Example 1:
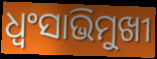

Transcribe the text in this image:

ଧ୍ଵଂସାଭିମୁଖୀ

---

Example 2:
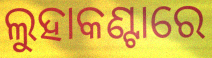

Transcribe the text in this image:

ଲୁହାକଣ୍ଟାରେ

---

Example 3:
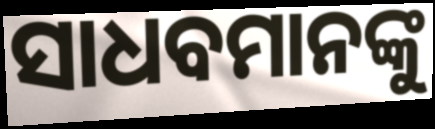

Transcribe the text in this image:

ସାଧବମାନଙ୍କୁ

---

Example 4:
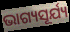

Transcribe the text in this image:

ଭାଗ୍ୟସୂର୍ଯ୍ୟ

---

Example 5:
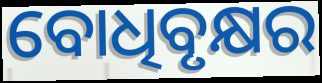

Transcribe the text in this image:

ବୋଧିବୃକ୍ଷର